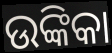
ଉଙ୍କିକା